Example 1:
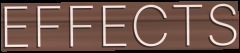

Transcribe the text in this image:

EFFECTS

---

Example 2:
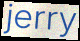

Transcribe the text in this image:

jerry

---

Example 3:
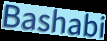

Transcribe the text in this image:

Bashabi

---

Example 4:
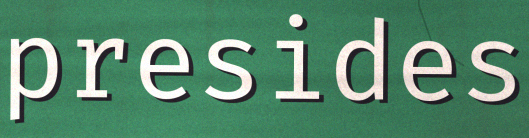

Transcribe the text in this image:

presides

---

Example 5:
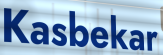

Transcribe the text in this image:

Kasbekar